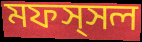
মফস্‌সল